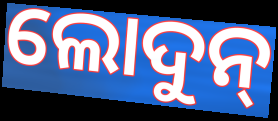
ଲୋଦୁନ୍